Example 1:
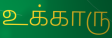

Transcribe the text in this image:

உக்காரு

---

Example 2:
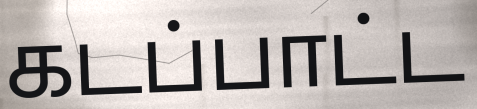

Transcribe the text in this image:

கடப்பாட்ட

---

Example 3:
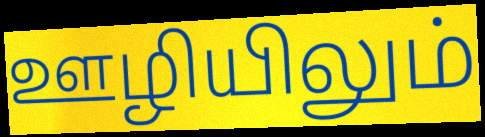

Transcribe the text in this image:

ஊழியிலும்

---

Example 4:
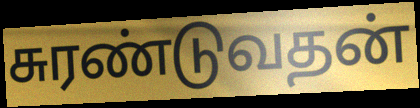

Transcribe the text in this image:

சுரண்டுவதன்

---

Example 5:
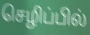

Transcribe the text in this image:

செழிப்பில்